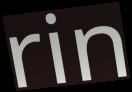
rin